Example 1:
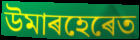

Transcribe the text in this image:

উমাৰহেৰেত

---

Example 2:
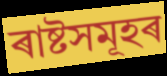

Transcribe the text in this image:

ৰাষ্টসমূহৰ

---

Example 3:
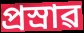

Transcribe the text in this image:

প্ৰস্ৰাৱ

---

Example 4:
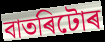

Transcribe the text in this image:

বাতৰিটোৰ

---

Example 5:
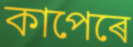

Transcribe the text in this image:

কাপেৰে